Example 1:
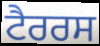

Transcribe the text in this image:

ਟੈਰਰਸ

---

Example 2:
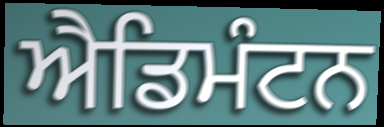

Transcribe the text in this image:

ਐਡਿਮੰਟਨ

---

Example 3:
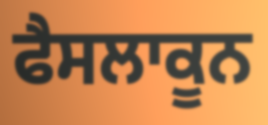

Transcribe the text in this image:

ਫੈਸਲਾਕੂਨ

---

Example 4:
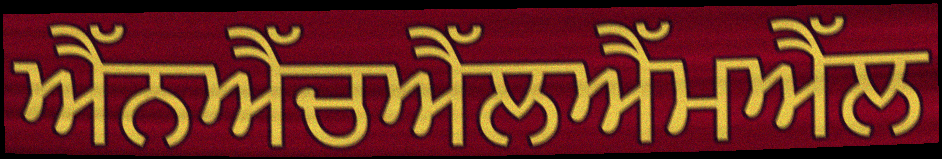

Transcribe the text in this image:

ਐੱਨਐੱਚਐੱਲਐੱਮਐੱਲ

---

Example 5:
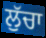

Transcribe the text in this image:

ਲੁੱਚਾ